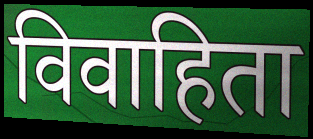
विवाहिता